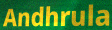
Andhrula